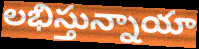
లభిస్తున్నాయా